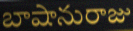
బాషానురాజు